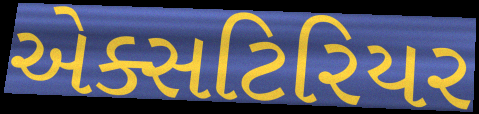
એક્સટિરિયર